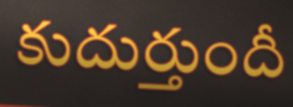
కుదుర్తుందీ